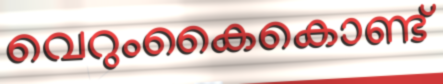
വെറുംകൈകൊണ്ട്